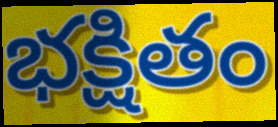
భక్షితం